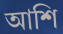
আশি